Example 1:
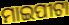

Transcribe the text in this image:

ମାଇପୀଟା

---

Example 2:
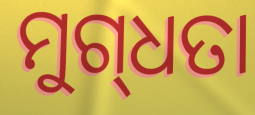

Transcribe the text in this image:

ମୁଗ୍‌ଧତା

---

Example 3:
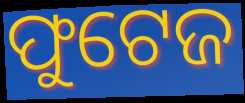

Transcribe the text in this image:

ଫୁଟେଜ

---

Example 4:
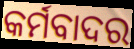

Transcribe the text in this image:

କର୍ମବାଦର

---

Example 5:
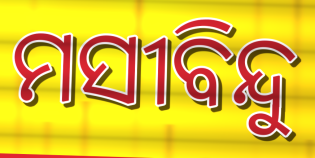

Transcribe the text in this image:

ମସୀବିନ୍ଦୁ